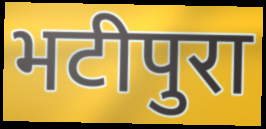
भटीपुरा